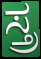
ಸ್ತ್ರ